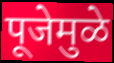
पूजेमुळे